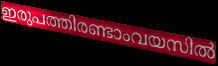
ഇരുപത്തിരണ്ടാംവയസിൽ